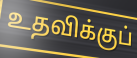
உதவிக்குப்